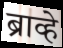
ब्राव्हे